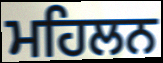
ਮਹਿਲਨ